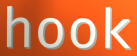
hook